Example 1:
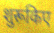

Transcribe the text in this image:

शुरूकिए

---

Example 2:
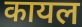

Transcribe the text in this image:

कायल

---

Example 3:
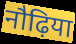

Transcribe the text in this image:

नौढ़िया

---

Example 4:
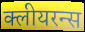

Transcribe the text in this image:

क्लीयरन्स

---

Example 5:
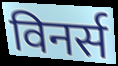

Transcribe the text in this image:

विनर्स